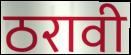
ठरावी